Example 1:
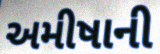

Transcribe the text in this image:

અમીષાની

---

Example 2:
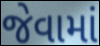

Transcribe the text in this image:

જેવામાં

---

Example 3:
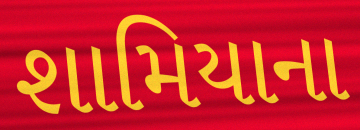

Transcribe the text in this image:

શામિયાના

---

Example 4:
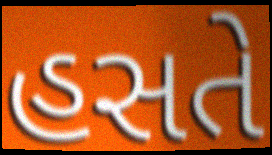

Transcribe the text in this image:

હસતે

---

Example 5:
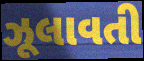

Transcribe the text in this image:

ઝૂલાવતી